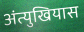
अंत्युखियास